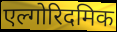
एल्गोरिदमिक